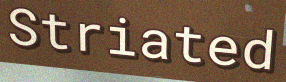
Striated